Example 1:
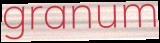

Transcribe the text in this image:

granum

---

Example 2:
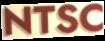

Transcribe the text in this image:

NTSC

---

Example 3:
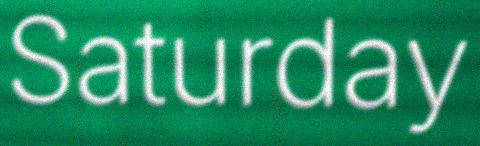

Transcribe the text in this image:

Saturday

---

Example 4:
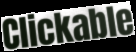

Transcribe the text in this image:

Clickable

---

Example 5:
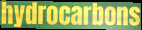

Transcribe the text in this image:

hydrocarbons